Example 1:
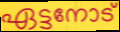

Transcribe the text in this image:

ഏട്ടനോട്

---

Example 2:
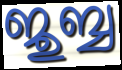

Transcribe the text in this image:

ജുബ്ബ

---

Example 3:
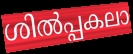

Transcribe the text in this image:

ശിൽപ്പകലാ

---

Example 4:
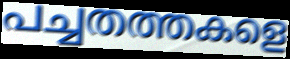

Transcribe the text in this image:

പച്ചതത്തകളെ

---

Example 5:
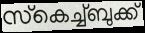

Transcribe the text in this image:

സ്‌കെച്ച്ബുക്ക്